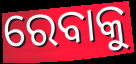
ରେବାକୁ